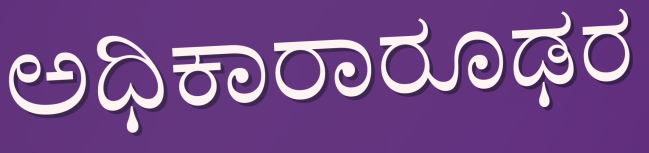
ಅಧಿಕಾರಾರೂಢರ